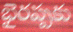
భైరప్పకు